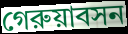
গেরুয়াবসন